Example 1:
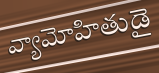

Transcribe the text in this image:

వ్యామోహితుడై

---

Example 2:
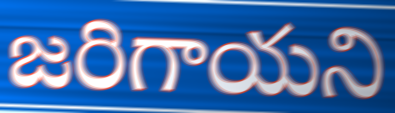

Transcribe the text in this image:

జరిగాయని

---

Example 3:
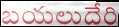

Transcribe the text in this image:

బయలుదేరి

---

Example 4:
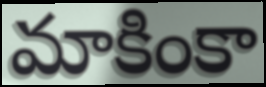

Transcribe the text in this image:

మాకింకా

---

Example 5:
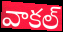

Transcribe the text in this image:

వాకల్